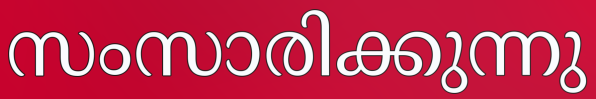
സംസാരിക്കുന്നു